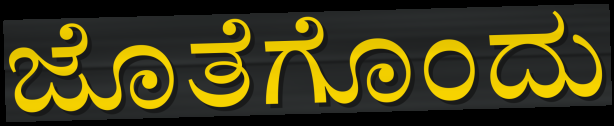
ಜೊತೆಗೊಂದು